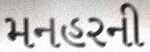
મનહરની